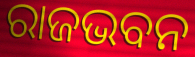
ରାଜଭବନ